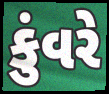
કુંવરે